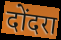
दोंदरा